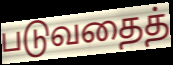
படுவதைத்